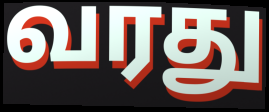
வரது